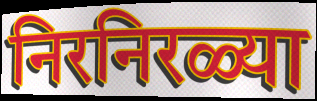
निरनिरळ्या